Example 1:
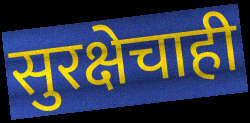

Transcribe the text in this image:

सुरक्षेचाही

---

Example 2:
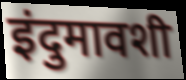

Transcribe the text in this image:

इंदुमावशी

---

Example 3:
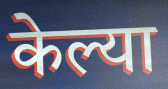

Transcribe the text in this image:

केल्या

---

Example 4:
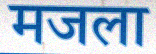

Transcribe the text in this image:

मजला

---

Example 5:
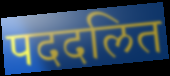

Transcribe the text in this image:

पददलित